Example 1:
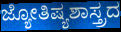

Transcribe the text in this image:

ಜ್ಯೋತಿಷ್ಯಶಾಸ್ತ್ರದ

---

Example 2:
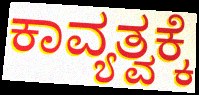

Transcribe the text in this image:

ಕಾವ್ಯತ್ವಕ್ಕೆ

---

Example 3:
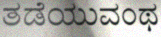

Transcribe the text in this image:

ತಡೆಯುವಂಥ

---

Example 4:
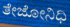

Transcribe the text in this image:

ತೇಜೋನಿಧಿ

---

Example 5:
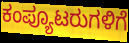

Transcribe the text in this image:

ಕಂಪ್ಯೂಟರುಗಳಿಗೆ